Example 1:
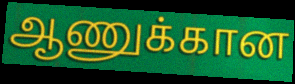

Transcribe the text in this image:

ஆணுக்கான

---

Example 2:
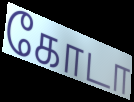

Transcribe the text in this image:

கோடா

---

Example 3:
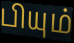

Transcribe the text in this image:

பியும்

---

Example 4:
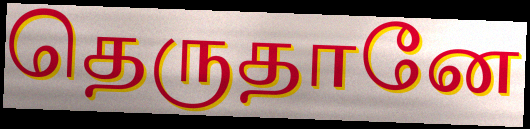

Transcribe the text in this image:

தெருதானே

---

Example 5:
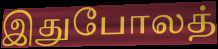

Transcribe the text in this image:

இதுபோலத்